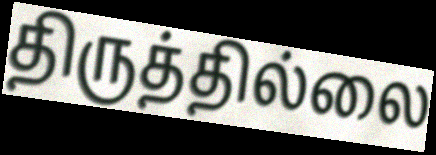
திருத்தில்லை